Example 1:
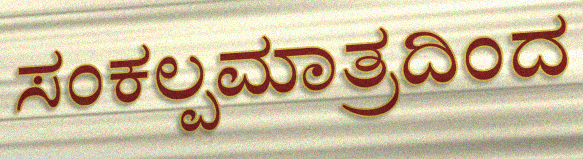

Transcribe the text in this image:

ಸಂಕಲ್ಪಮಾತ್ರದಿಂದ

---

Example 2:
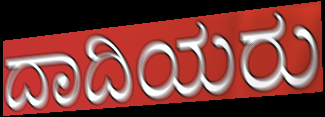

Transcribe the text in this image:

ದಾದಿಯರು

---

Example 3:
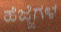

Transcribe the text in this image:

ಹೆಜ್ಜೆಗಳ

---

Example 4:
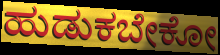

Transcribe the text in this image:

ಹುಡುಕಬೇಕೋ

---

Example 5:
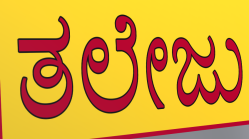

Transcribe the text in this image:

ತಲೇಜು